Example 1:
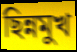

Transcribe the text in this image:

ছিন্নমুখ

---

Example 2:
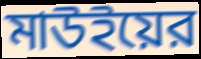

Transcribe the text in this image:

মাউইয়ের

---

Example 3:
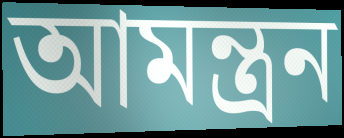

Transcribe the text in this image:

আমন্ত্রন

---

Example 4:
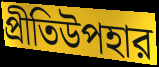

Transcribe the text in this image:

প্রীতিউপহার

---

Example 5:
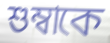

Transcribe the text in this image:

শুম্বাকে